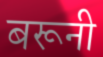
बरूनी